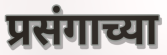
प्रसंगाच्या